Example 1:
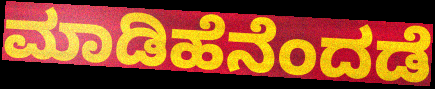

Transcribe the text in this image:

ಮಾಡಿಹೆನೆಂದಡೆ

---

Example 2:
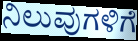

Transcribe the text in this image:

ನಿಲುವುಗಳಿಗೆ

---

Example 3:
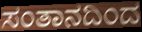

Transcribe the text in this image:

ಸಂತಾನದಿಂದ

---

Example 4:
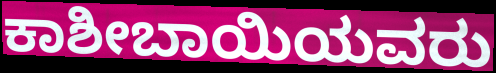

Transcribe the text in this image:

ಕಾಶೀಬಾಯಿಯವರು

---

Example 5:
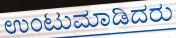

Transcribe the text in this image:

ಉಂಟುಮಾಡಿದರು